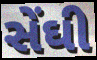
સેંઘી